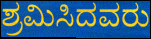
ಶ್ರಮಿಸಿದವರು